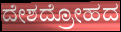
ದೇಶದ್ರೋಹದ